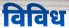
विविध